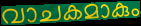
വാചകമാകും